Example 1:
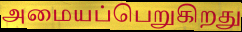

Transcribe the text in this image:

அமையப்பெறுகிறது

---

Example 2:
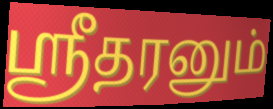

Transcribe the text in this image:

ஸ்ரீதரனும்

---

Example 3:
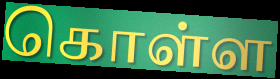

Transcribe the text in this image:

கொள்ள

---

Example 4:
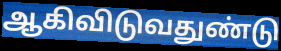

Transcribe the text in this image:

ஆகிவிடுவதுண்டு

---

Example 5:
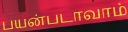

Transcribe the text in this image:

பயன்படாவாம்